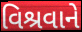
વિશ્રવાને